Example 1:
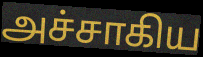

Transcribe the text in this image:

அச்சாகிய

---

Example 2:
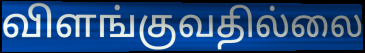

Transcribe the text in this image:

விளங்குவதில்லை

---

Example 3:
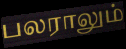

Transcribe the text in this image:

பலராலும்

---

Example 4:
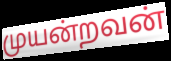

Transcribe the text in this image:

முயன்றவன்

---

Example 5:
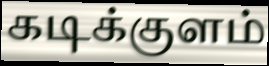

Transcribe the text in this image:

கடிக்குளம்